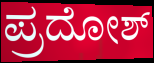
ಪ್ರದೋಶ್